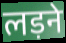
लड़ने